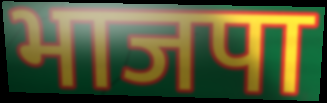
भाजपा